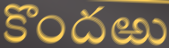
కొందఱు